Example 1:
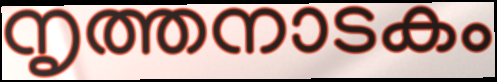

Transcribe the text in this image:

നൃത്തനാടകം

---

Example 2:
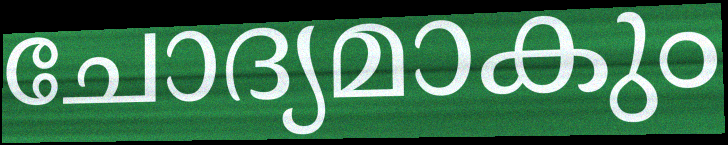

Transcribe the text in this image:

ചോദ്യമാകും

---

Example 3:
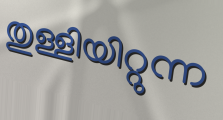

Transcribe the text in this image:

തുള്ളിയിറ്റുന്ന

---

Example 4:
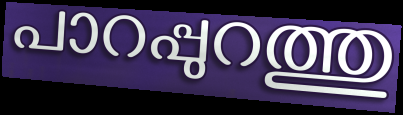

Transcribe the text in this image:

പാറപ്പുറത്തു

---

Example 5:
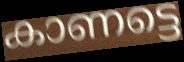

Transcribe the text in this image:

കാണട്ടെ